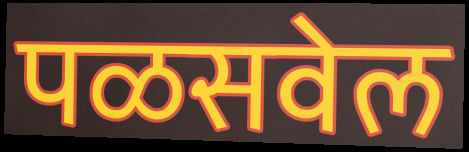
पळसवेल